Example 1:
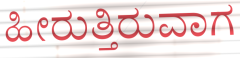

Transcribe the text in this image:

ಹೀರುತ್ತಿರುವಾಗ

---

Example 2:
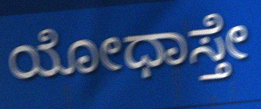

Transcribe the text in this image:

ಯೋಧಾಸ್ತೇ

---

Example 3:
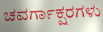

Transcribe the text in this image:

ಚವರ್ಗಾಕ್ಷರಗಳು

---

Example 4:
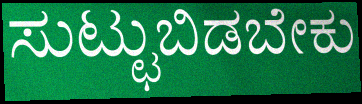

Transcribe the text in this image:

ಸುಟ್ಟುಬಿಡಬೇಕು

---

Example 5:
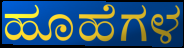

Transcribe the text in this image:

ಹೂಹೆಗಳ